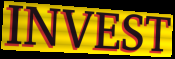
INVEST